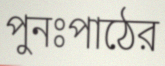
পুনঃপাঠের